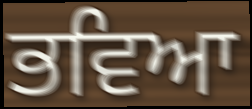
ਭਵਿਆ